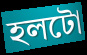
হলটো